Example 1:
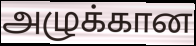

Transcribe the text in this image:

அழுக்கான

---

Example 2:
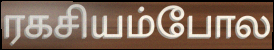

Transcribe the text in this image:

ரகசியம்போல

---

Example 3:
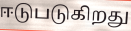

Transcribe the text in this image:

ஈடுபடுகிறது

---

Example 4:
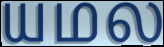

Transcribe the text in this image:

யமல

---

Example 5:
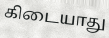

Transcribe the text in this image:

கிடையாது